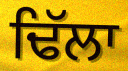
ਢਿੱਲਾ